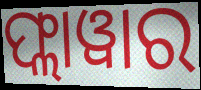
ଫ୍ଲାୱାର